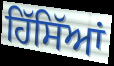
ਹਿੱਸਿੱਆਂ